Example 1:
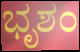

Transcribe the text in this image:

ಭೃಶಂ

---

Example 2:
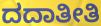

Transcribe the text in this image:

ದದಾತೀತಿ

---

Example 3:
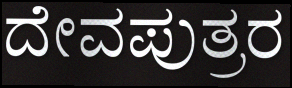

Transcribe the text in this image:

ದೇವಪುತ್ರರ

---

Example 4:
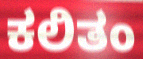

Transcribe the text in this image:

ಕಲಿತಂ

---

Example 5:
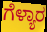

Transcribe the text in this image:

ಗೆಳ್ಯಾರ